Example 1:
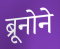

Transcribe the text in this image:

ब्रूनोने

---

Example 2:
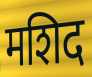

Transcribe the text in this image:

मशिद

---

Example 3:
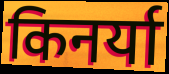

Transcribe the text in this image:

किनर्या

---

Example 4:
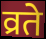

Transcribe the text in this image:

व्रते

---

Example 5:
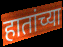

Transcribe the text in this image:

हातांच्या